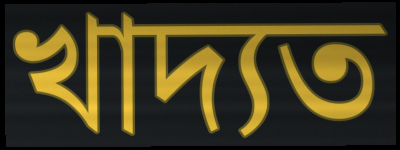
খাদ্যত